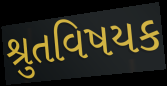
શ્રુતવિષયક